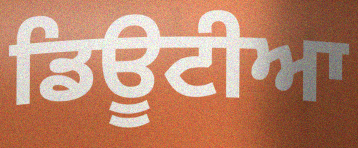
ਡਿਊਟੀਆ